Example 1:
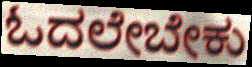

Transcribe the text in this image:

ಓದಲೇಬೇಕು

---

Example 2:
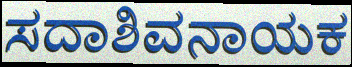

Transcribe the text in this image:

ಸದಾಶಿವನಾಯಕ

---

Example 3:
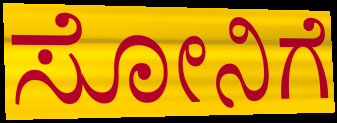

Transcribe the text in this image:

ಸೋನಿಗೆ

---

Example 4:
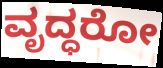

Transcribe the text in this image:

ವೃದ್ಧರೋ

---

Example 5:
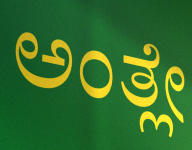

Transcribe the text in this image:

ಅಂತ್ಲೇ